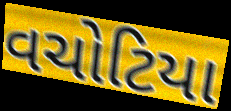
વચોટિયા